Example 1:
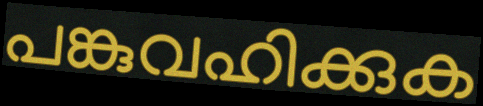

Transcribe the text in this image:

പങ്കുവഹിക്കുക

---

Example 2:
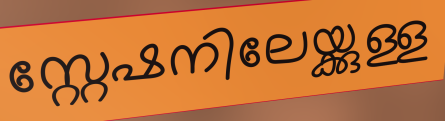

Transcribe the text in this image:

സ്റ്റേഷനിലേയ്ക്കുള്ള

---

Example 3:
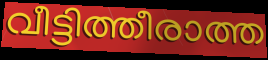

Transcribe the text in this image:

വീട്ടിത്തീരാത്ത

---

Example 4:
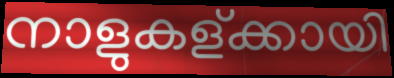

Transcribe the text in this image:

നാളുകള്ക്കായി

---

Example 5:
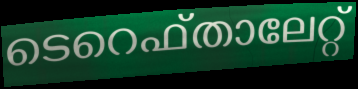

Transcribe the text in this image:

ടെറെഫ്താലേറ്റ്